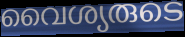
വൈശ്യരുടെ